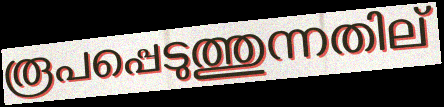
രൂപപ്പെടുത്തുന്നതില്